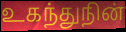
உகந்துநின்